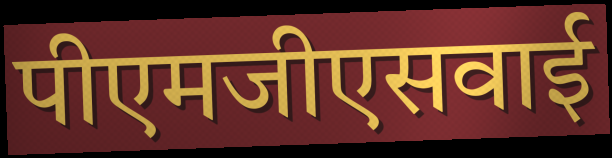
पीएमजीएसवाई